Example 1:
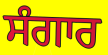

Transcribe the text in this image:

ਸੰਗਾਰ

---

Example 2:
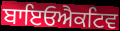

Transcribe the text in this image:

ਬਾਇਓਐਕਟਿਵ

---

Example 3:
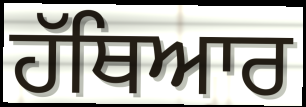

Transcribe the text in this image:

ਹੱਥਿਆਰ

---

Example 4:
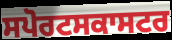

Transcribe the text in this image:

ਸਪੋਰਟਸਕਾਸਟਰ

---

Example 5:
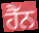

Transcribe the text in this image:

ਹੈੱਨ